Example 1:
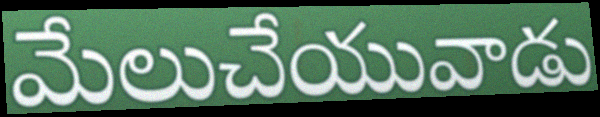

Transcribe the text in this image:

మేలుచేయువాడు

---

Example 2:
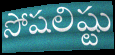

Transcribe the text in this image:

సోషలిష్టు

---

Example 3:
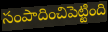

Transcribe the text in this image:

సంపాదించిపెట్టింది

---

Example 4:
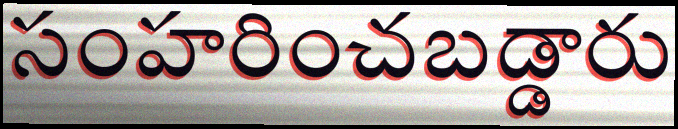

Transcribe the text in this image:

సంహరించబడ్డారు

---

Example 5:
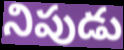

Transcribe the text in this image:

నిపుడు